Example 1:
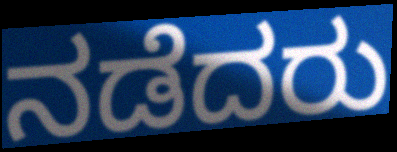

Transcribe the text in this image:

ನಡೆದರು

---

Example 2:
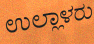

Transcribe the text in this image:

ಉಲ್ಲಾಳರು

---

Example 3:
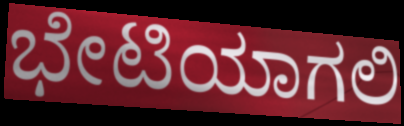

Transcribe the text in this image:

ಭೇಟಿಯಾಗಲಿ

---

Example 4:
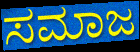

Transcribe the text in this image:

ಸಮಾಜ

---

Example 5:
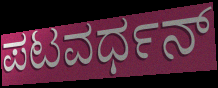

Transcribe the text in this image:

ಪಟವರ್ಧನ್